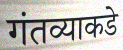
गंतव्याकडे